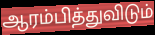
ஆரம்பித்துவிடும்